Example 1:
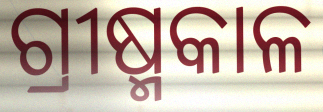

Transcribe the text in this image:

ଗ୍ରୀଷ୍ମକାଳ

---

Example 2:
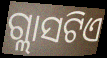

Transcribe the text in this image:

ଗ୍ଲାସଟିଏ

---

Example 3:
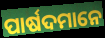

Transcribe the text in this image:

ପାର୍ଷଦମାନେ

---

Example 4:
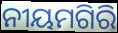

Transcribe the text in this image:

ନୀୟମଗିରି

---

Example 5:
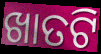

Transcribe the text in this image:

ଖାତଟି